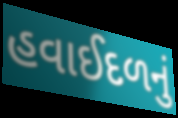
હવાઈદળનું